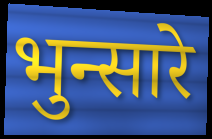
भुन्सारे